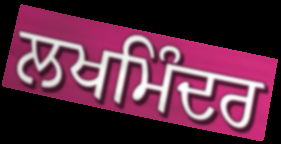
ਲਖਮਿੰਦਰ